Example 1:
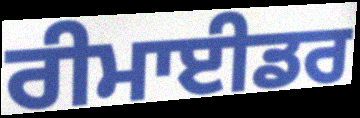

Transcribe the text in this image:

ਰੀਮਾਈਡਰ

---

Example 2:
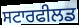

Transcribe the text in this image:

ਸਟਾਰਫੀਲਡ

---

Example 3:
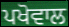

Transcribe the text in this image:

ਪਖੋਵਾਲ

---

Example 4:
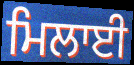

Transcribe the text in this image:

ਮਿਲਾਈ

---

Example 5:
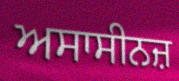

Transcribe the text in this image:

ਅਸਾਸੀਨਜ਼